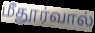
மீதூர்வால்